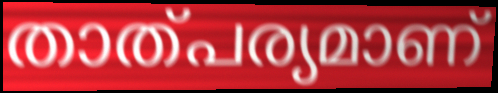
താത്പര്യമാണ്